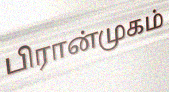
பிரான்முகம்